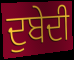
ਦੁਬੇਦੀ